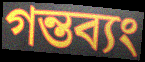
গন্তব্যং